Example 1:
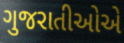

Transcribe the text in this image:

ગુજરાતીઓએ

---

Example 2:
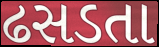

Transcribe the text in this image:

ઢસડતા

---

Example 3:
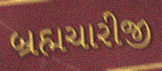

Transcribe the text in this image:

બ્રહ્મચારીજી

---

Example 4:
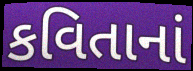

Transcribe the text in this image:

કવિતાનાં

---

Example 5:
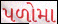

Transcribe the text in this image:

પળોમા